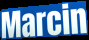
Marcin